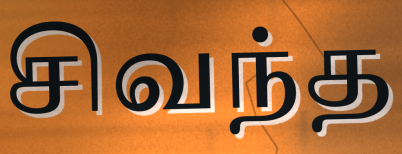
சிவந்த